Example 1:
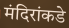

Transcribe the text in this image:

मंदिरांकडे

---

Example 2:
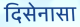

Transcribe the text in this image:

दिसेनासा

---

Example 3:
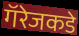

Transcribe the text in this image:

गॅरेजकडे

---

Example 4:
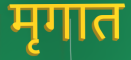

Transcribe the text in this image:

मृगात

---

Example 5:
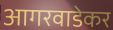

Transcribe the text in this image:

आगरवाडेकर